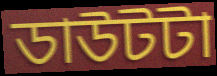
ডাউটটা